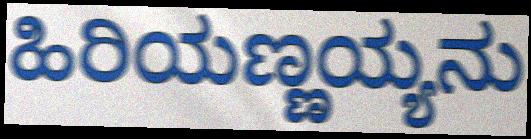
ಹಿರಿಯಣ್ಣಯ್ಯನು